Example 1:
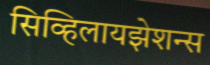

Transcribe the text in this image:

सिव्हिलायझेशन्स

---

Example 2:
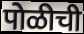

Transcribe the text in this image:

पोळीची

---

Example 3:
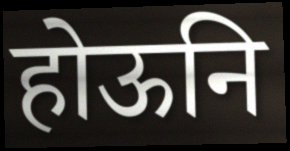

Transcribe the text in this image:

होऊनि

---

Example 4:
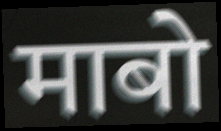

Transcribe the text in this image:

माबो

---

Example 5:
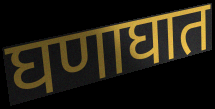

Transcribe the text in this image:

घणाघात